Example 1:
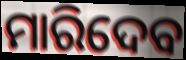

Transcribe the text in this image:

ମାରିଦେବ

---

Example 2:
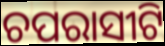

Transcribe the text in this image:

ଚପରାସୀଟି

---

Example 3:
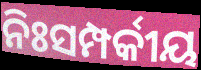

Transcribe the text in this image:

ନିଃସମ୍ପର୍କୀୟ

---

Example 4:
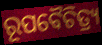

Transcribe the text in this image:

ରୂପବୈଚିତ୍ର୍ୟ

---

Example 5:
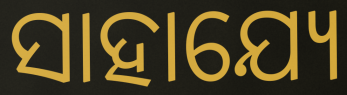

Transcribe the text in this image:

ସାହାଯ୍ୟେ